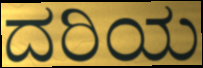
ದರಿಯ